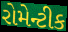
રોમેન્ટીક